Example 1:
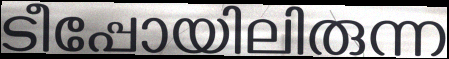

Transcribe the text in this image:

ടീപ്പോയിലിരുന്ന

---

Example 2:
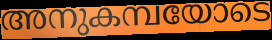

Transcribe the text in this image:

അനുകമ്പയോടെ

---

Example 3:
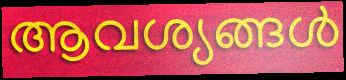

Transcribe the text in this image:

ആവശ്യങ്ങൾ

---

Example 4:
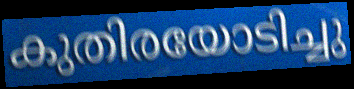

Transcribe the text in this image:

കുതിരയോടിച്ചു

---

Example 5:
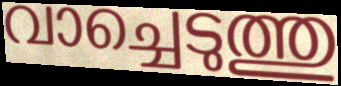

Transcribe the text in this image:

വാച്ചെടുത്തു